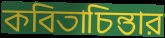
কবিতাচিন্তার